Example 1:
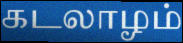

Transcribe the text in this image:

கடலாழம்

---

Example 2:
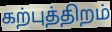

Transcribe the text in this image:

கற்புத்திறம்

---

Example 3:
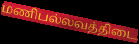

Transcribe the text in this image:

மணிபல்லவத்திடை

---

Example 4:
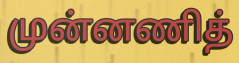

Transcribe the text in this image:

முன்னணித்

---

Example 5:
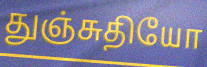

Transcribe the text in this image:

துஞ்சுதியோ